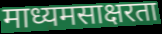
माध्यमसाक्षरता